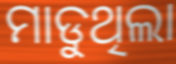
ମାଡୁଥିଲା